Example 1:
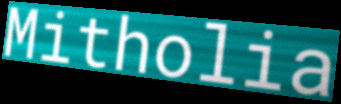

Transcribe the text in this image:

Mitholia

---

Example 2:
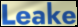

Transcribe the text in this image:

Leake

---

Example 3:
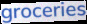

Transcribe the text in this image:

groceries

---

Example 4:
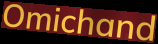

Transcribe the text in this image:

Omichand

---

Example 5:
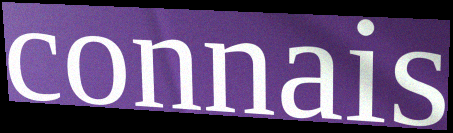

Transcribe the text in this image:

connais